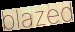
blazed